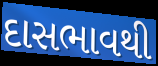
દાસભાવથી